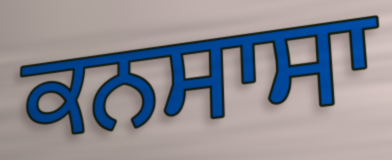
ਕਨਸਾਸਾ